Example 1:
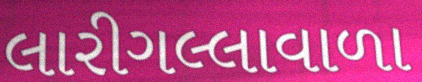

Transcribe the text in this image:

લારીગલ્લાવાળા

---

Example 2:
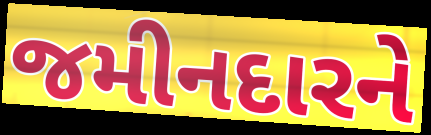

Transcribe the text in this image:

જમીનદારને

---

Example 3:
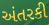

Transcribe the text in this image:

અંતરકી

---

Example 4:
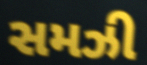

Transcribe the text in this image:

સમઝી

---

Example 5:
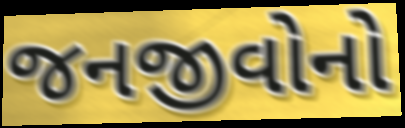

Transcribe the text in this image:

જનજીવોનો